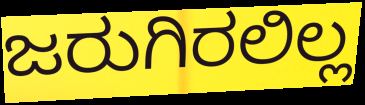
ಜರುಗಿರಲಿಲ್ಲ